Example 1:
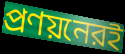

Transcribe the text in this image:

প্রণয়নেরই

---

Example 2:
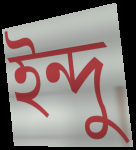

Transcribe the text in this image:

ইন্দু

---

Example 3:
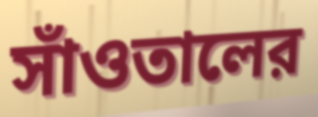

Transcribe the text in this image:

সাঁওতালের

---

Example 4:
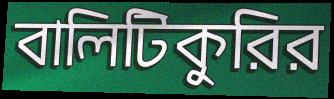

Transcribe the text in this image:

বালিটিকুরির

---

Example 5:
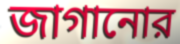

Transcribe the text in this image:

জাগানোর